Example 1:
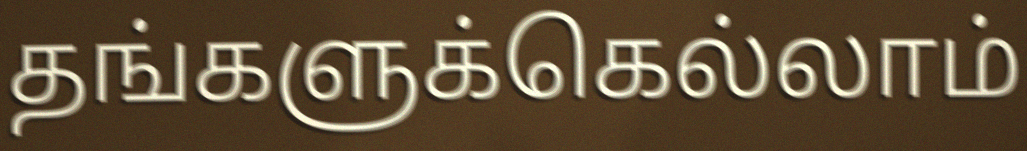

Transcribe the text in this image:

தங்களுக்கெல்லாம்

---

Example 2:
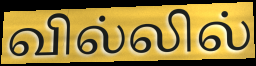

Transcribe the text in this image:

வில்லில்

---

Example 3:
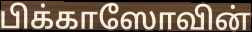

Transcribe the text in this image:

பிக்காஸோவின்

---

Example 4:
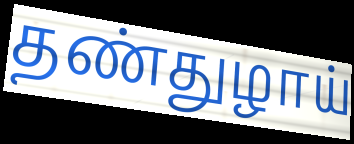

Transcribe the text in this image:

தண்துழாய்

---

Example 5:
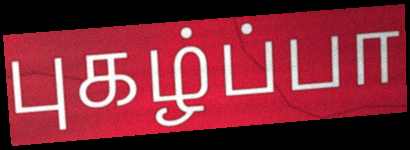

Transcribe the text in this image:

புகழ்ப்பா